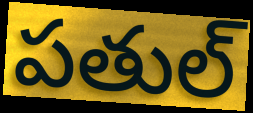
పతుల్